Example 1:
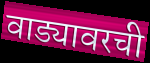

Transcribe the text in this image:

वाड्यावरची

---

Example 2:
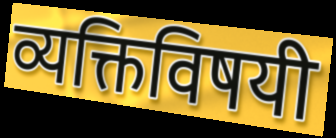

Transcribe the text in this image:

व्यक्तिविषयी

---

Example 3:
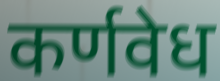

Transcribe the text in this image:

कर्णवेध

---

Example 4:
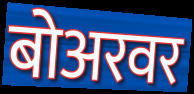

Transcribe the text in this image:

बोअरवर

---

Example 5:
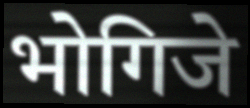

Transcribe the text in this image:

भोगिजे